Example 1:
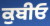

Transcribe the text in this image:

ਕੁਬੀਓ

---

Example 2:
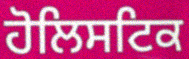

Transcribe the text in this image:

ਹੋਲਿਸਟਿਕ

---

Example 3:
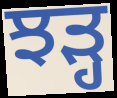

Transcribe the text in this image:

ਝੜ੍ਹ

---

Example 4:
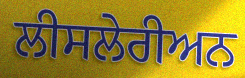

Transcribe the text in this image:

ਲੀਸਲੇਰੀਅਨ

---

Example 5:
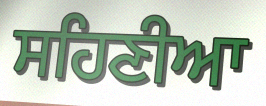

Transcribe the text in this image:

ਸਹਿਣੀਆ